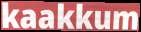
kaakkum